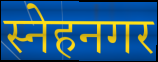
स्नेहनगर